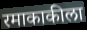
रमाकाकीला